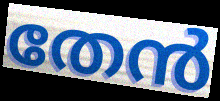
തേൻ